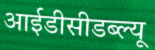
आईडीसीडब्ल्यू